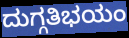
ದುಗ್ಗತಿಭಯಂ